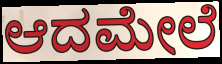
ಆದಮೇಲೆ